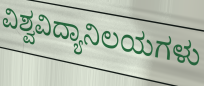
ವಿಶ್ವವಿದ್ಯಾನಿಲಯಗಳು